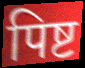
पिष्ट